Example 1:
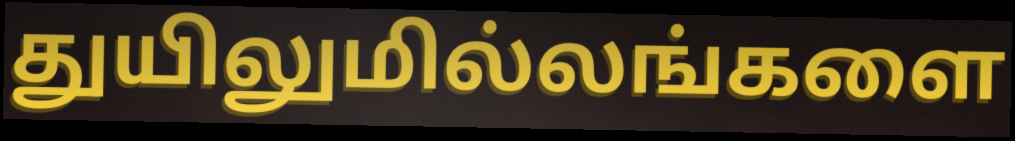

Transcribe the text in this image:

துயிலுமில்லங்களை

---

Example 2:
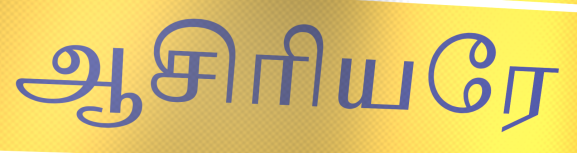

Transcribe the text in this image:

ஆசிரியரே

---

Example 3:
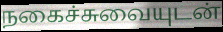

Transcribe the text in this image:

நகைச்சுவையுடன்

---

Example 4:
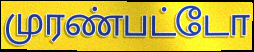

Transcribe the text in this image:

முரண்பட்டோ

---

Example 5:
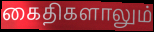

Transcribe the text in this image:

கைதிகளாலும்